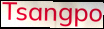
Tsangpo